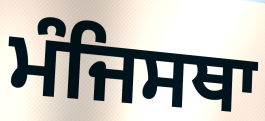
ਮੰਜਿਸਥਾ